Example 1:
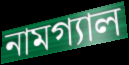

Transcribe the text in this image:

নামগ্যাল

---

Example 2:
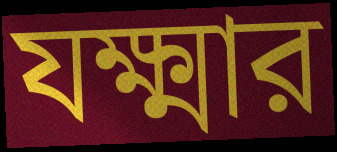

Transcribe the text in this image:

যক্ষ্মার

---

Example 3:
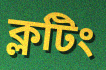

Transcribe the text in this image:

ক্লটিং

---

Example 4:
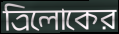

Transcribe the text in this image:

ত্রিলোকের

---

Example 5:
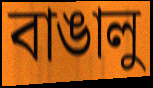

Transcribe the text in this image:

বাঙালু